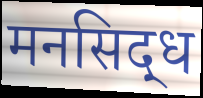
मनसिद्ध